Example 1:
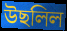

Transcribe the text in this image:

উছলিল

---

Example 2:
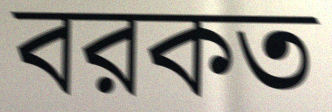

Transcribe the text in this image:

বরকত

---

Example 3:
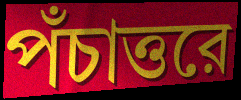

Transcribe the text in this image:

পঁচাত্তরে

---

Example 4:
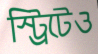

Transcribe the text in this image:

স্ট্রিটেও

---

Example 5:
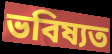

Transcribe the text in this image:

ভবিষ্যত